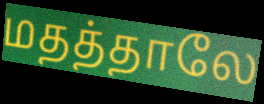
மதத்தாலே